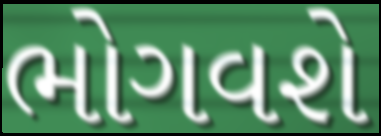
ભોગવશે